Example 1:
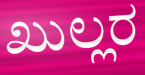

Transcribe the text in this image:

ಖುಲ್ಲರ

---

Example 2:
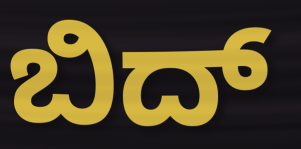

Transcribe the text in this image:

ಬಿದ್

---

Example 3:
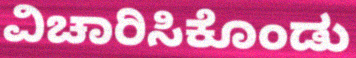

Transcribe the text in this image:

ವಿಚಾರಿಸಿಕೊಂಡು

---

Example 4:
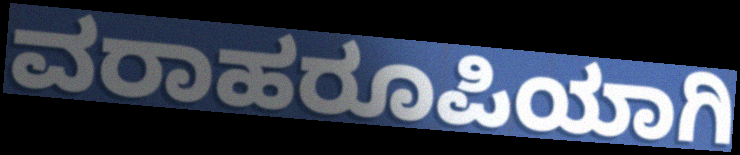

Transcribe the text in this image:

ವರಾಹರೂಪಿಯಾಗಿ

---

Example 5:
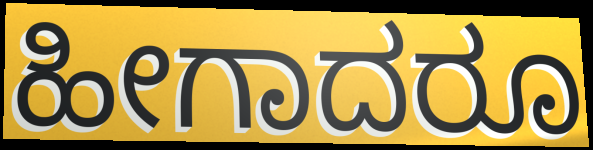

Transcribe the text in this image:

ಹೀಗಾದರೂ